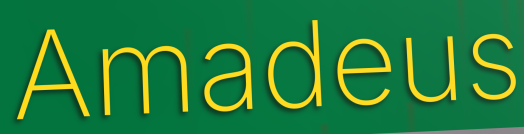
Amadeus